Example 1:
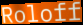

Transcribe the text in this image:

Roloff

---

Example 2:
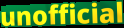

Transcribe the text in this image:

unofficial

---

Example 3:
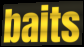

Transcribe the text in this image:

baits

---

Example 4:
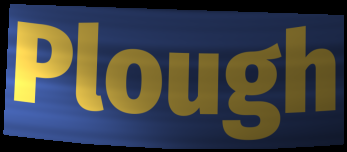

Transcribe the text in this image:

Plough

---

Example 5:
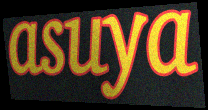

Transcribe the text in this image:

asuya